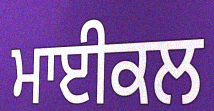
ਮਾਈਕਲ